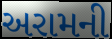
અરામની